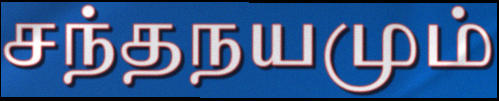
சந்தநயமும்